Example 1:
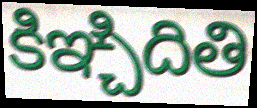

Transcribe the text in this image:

కిఞ్చిదితి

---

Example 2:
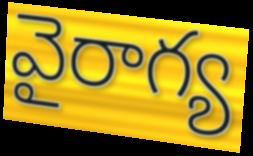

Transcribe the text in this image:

వైరాగ్య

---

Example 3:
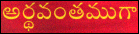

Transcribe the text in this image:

అర్థవంతముగా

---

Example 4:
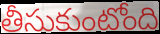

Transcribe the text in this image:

తీసుకుంటోంది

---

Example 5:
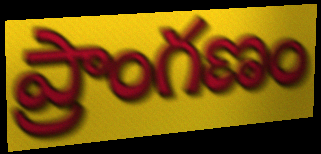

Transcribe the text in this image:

ప్రాంగణం